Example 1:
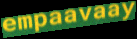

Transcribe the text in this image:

empaavaay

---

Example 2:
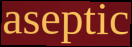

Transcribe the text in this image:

aseptic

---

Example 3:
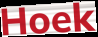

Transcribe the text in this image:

Hoek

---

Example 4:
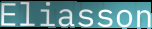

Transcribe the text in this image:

Eliasson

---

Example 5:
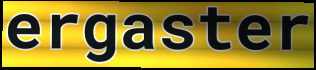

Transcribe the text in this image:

ergaster